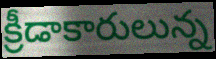
క్రీడాకారులున్న